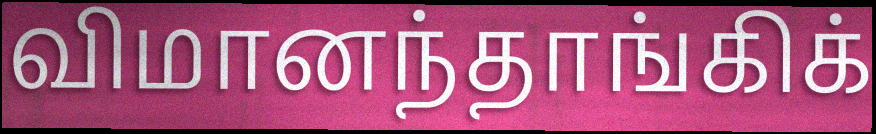
விமானந்தாங்கிக்